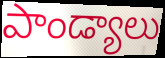
పాండ్యాలు